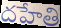
దహేతి